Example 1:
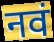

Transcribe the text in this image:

नवं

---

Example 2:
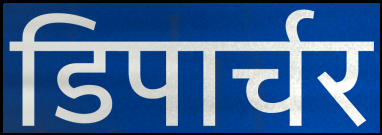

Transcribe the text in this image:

डिपार्चर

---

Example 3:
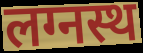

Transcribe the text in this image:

लग्नस्थ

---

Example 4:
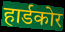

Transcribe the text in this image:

हार्डकोर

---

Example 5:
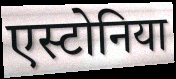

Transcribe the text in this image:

एस्‍टोनिया